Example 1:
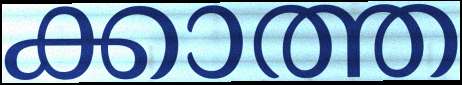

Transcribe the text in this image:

ക്കാത്ത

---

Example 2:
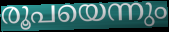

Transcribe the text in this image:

രൂപയെന്നും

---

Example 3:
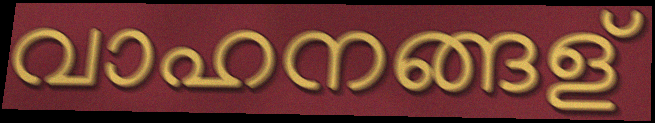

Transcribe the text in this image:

വാഹനങ്ങള്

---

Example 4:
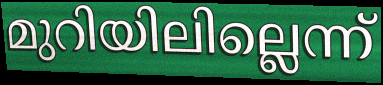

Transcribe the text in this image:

മുറിയിലില്ലെന്ന്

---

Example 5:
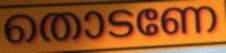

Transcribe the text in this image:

തൊടണേ